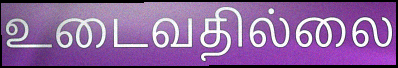
உடைவதில்லை